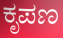
ಕೃಪಣ